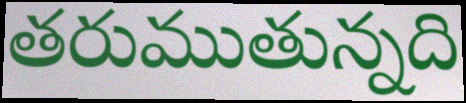
తరుముతున్నది